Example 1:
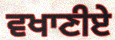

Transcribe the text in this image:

ਵਖਾਣੀਏ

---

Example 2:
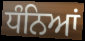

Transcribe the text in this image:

ਧੰਨਿਆਂ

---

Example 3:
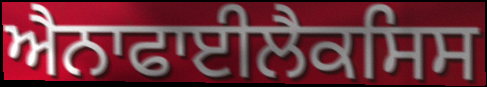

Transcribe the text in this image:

ਐਨਾਫਾਈਲੈਕਸਿਸ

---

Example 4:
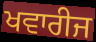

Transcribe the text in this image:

ਖਵਾਰੀਜ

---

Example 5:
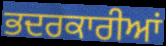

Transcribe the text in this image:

ਭਦਰਕਾਰੀਆਂ